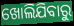
ଖୋଲିଯିବାରୁ